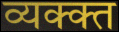
व्यक्क्त